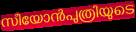
സീയോൻപുത്രിയുടെ